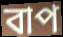
বাপ